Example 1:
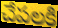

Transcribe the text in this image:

చేపలకి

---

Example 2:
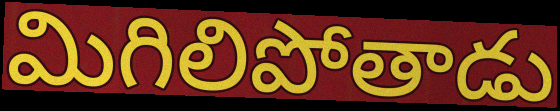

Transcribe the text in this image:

మిగిలిపోతాడు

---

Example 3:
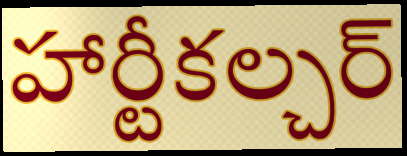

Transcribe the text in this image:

హార్టీకల్చర్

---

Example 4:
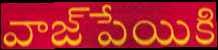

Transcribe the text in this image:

వాజ్‌పేయికి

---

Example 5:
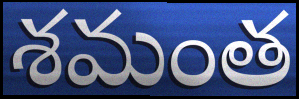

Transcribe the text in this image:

శమంత